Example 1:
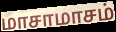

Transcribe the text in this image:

மாசாமாசம்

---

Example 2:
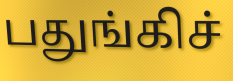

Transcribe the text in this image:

பதுங்கிச்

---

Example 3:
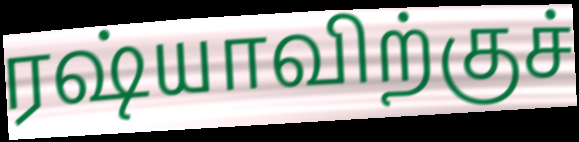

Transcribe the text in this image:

ரஷ்யாவிற்குச்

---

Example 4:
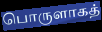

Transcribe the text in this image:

பொருளாகத்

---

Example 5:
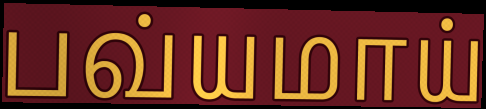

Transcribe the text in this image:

பவ்யமாய்